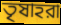
তৃষাহরা